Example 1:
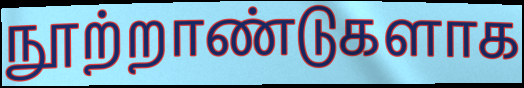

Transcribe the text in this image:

நூற்றாண்டுகளாக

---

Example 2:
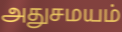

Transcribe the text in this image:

அதுசமயம்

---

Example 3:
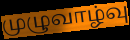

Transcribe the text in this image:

முழுவாழ்வு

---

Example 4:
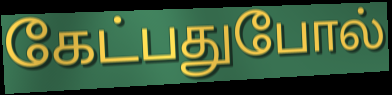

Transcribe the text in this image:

கேட்பதுபோல்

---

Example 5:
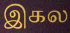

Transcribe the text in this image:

இகல